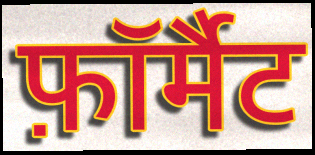
फ़ॉर्मैट